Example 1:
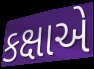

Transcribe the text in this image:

કક્ષાએ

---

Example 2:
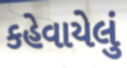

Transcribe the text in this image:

કહેવાયેલું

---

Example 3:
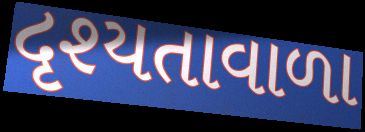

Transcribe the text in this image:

દૃશ્યતાવાળા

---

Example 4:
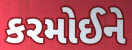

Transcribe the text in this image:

કરમોઈને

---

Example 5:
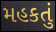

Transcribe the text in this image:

મહકતું